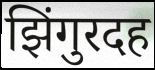
झिंगुरदह